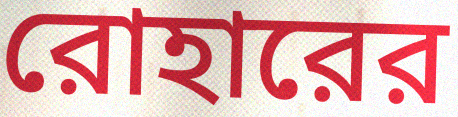
রোহারের